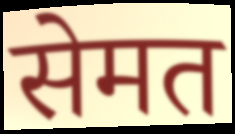
सेमत